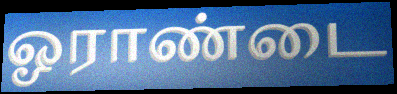
ஓராண்டை